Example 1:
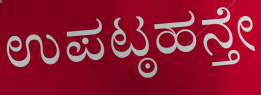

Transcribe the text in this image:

ಉಪಟ್ಠಹನ್ತೇ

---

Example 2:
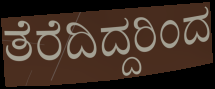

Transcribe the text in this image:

ತೆರೆದಿದ್ದರಿಂದ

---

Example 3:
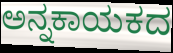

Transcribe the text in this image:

ಅನ್ನಕಾಯಕದ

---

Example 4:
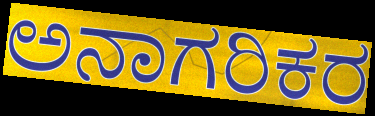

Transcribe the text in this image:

ಅನಾಗರಿಕರ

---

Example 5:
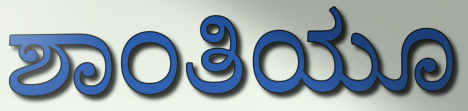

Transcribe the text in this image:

ಶಾಂತಿಯೂ